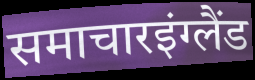
समाचारइंग्लैंड